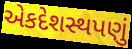
એકદેશસ્થપણું